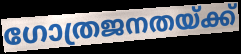
ഗോത്രജനതയ്ക്ക്